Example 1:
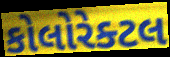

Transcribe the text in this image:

કોલોરેક્ટલ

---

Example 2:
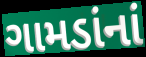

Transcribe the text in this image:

ગામડાંનાં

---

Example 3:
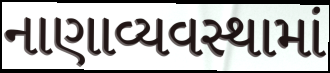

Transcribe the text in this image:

નાણાવ્યવસ્થામાં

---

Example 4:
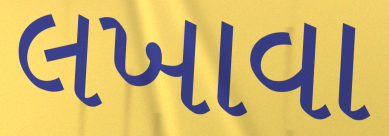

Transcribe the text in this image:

લખાવા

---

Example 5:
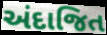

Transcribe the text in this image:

અંદાજિત